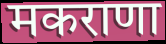
मकराणा